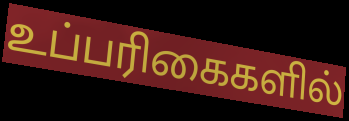
உப்பரிகைகளில்